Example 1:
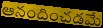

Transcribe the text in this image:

ఆనందించడమే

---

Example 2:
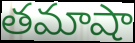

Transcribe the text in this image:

తమాషా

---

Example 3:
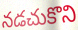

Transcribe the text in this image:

నడచుకొని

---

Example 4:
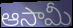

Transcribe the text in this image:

ఆసామీ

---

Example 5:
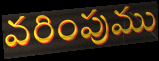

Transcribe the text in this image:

వరింపుము